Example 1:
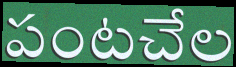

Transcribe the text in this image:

పంటచేల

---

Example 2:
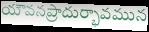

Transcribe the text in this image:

యౌవనప్రాదుర్భావమున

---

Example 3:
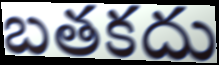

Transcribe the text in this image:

బతకదు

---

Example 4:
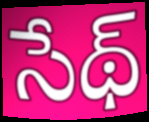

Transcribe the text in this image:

సేథ్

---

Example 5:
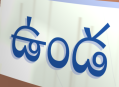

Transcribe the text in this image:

ఉండ